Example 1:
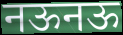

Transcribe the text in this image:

नऊनऊ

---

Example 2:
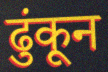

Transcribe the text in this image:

ढुंकून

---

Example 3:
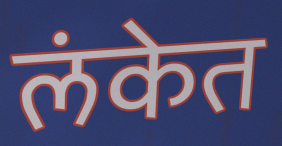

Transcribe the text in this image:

लंकेत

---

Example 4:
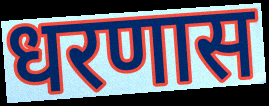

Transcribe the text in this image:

धरणास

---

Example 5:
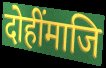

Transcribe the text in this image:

दोहींमाजि